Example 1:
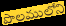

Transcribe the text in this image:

పొలములోని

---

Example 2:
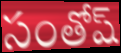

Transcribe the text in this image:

సంతోష్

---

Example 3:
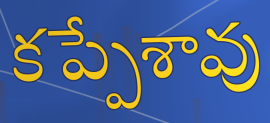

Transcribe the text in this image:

కప్పేశావు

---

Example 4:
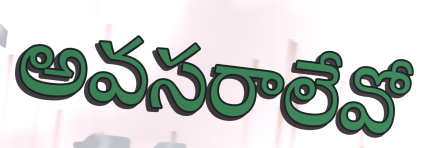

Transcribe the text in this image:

అవసరాలేవో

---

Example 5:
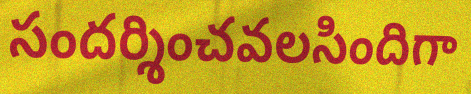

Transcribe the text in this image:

సందర్శించవలసిందిగా